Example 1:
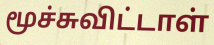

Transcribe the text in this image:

மூச்சுவிட்டாள்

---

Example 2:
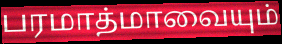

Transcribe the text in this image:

பரமாத்மாவையும்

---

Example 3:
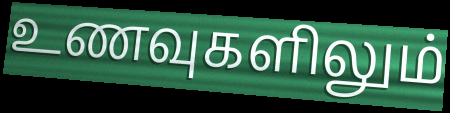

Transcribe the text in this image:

உணவுகளிலும்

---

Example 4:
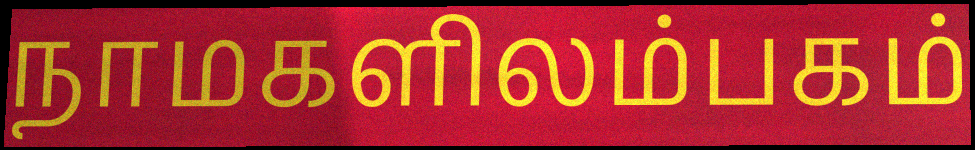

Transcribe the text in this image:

நாமகளிலம்பகம்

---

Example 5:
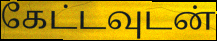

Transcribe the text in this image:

கேட்டவுடன்